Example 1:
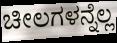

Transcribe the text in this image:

ಚೀಲಗಳನ್ನೆಲ್ಲ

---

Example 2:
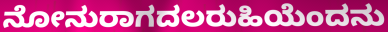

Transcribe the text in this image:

ನೋನುರಾಗದಲರುಹಿಯೆಂದನು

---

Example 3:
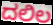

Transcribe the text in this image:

ದಲಿಲ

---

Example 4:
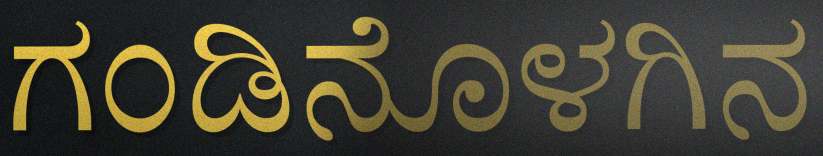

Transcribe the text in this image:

ಗಂಡಿನೊಳಗಿನ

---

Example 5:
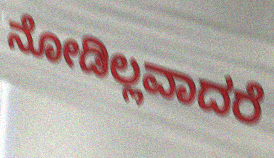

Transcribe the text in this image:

ನೋಡಿಲ್ಲವಾದರೆ